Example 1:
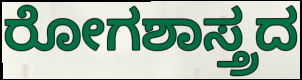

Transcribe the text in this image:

ರೋಗಶಾಸ್ತ್ರದ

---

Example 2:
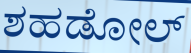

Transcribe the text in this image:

ಶಹಡೋಲ್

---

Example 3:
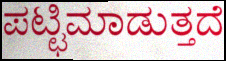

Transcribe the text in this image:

ಪಟ್ಟಿಮಾಡುತ್ತದೆ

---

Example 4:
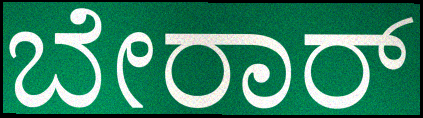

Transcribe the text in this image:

ಬೇರಾರ್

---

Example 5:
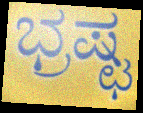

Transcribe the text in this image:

ಭ್ರಷ್ಟ